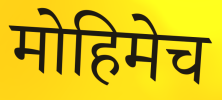
मोहिमेच